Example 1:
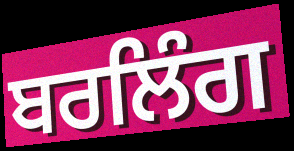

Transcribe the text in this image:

ਬਰਲਿੰਗ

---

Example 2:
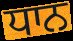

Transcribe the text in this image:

ਧਾਨ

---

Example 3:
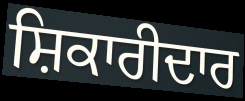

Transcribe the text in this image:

ਸ਼ਿਕਾਰੀਦਾਰ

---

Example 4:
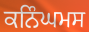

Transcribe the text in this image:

ਕਨਿੰਘਮਸ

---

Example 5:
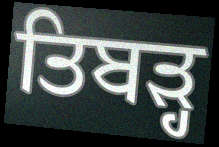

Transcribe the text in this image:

ਤਿਬੜ੍ਹ